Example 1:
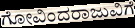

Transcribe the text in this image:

ಗೋವಿಂದರಾಜುವಿಗೆ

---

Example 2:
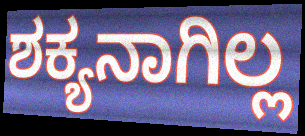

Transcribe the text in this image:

ಶಕ್ಯನಾಗಿಲ್ಲ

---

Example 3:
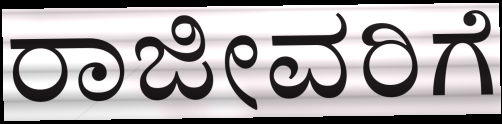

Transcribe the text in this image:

ರಾಜೀವರಿಗೆ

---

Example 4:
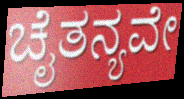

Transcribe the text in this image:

ಚೈತನ್ಯವೇ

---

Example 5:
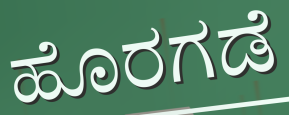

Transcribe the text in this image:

ಹೊರಗಡೆ